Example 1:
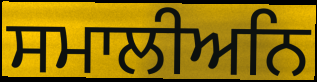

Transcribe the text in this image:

ਸਮਾਲੀਅਨਿ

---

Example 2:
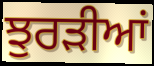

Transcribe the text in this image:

ਝੁਰੜੀਆਂ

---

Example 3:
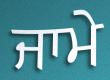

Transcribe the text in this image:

ਜਾਮੇ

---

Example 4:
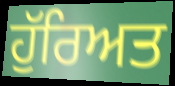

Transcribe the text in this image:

ਹੁੱਰਿਅਤ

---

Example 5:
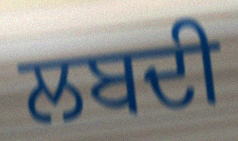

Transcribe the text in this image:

ਲਬਦੀ